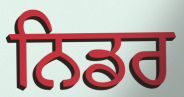
ਨਿਡਰ